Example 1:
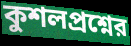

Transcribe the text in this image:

কুশলপ্রশ্নের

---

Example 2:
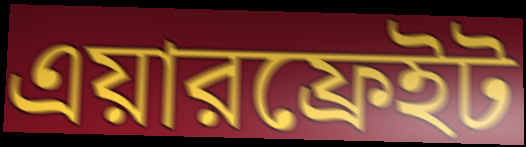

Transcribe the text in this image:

এয়ারফ্রেইট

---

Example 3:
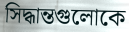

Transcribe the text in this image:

সিদ্ধান্তগুলোকে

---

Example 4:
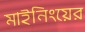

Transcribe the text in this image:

মাইনিংয়ের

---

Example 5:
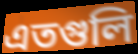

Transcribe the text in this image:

এতগুলি